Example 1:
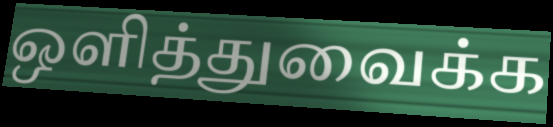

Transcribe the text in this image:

ஒளித்துவைக்க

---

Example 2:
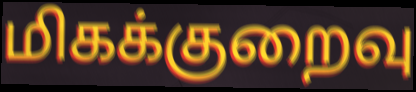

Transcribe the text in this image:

மிகக்குறைவு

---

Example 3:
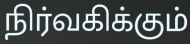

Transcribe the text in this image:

நிர்வகிக்கும்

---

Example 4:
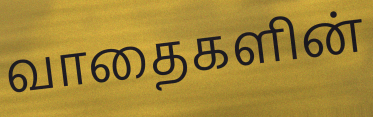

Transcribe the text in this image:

வாதைகளின்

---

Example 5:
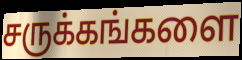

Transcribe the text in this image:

சருக்கங்களை